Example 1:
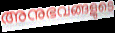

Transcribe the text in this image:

അനുഭവങ്ങളുടെ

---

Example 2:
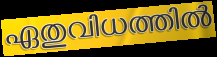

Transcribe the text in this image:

ഏതുവിധത്തിൽ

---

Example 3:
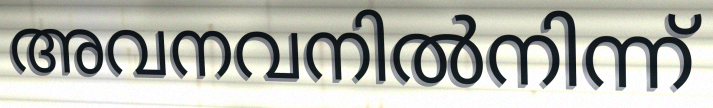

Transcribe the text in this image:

അവനവനിൽനിന്ന്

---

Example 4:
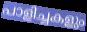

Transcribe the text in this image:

പാളിച്ചകളും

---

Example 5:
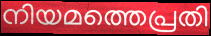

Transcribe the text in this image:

നിയമത്തെപ്രതി